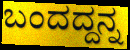
ಬಂದದ್ದನ್ನ